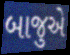
બાજુએ